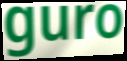
guro